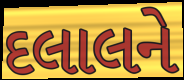
દલાલને